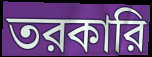
তরকারি